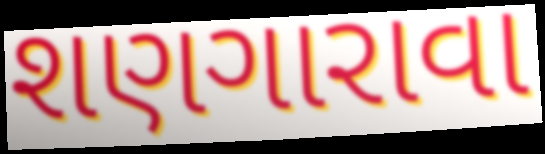
શણગારાવા